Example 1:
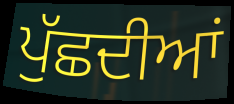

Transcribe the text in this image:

ਪੁੱਛਦੀਆਂ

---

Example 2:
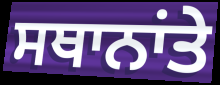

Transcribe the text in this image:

ਸਥਾਨਾਂਤੇ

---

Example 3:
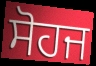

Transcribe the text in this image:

ਸੋਹਜ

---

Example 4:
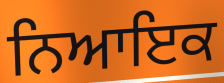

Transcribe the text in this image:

ਨਿਆਇਕ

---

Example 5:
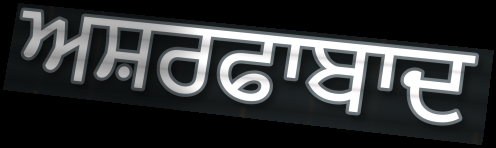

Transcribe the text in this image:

ਅਸ਼ਰਫਾਬਾਦ